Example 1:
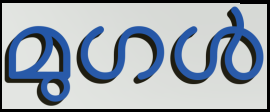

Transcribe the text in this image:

മുഗൾ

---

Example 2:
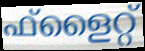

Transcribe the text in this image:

ഫ്ളൈറ്റ്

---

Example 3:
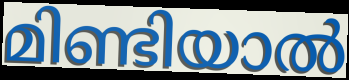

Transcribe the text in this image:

മിണ്ടിയാൽ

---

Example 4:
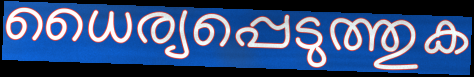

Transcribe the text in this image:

ധൈര്യപ്പെടുത്തുക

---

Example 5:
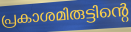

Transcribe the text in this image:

പ്രകാശമിരുട്ടിന്റെ